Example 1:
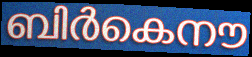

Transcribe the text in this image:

ബിർകെനൗ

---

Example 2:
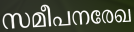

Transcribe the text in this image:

സമീപനരേഖ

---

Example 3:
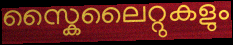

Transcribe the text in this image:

സ്കൈലൈറ്റുകളും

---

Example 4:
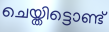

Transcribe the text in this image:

ചെയ്തിട്ടൊണ്ട്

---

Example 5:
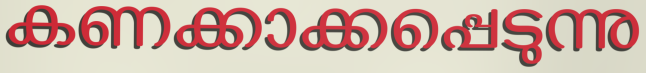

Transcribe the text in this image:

കണക്കാക്കപ്പെടുന്നു